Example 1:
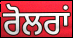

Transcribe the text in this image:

ਰੋਲਰਾਂ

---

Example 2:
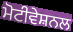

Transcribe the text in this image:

ਮੋਟੀਵੇਸ਼ਨਲ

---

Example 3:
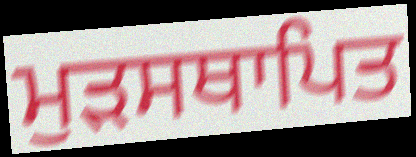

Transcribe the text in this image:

ਮੁੜਸਥਾਪਿਤ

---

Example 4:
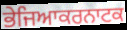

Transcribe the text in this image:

ਭੇਜਿਆਕਰਨਾਟਕ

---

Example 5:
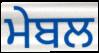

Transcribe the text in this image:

ਮੇਬਲ